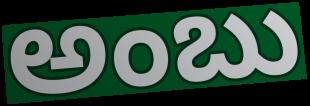
అంబు